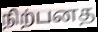
நிற்பனத